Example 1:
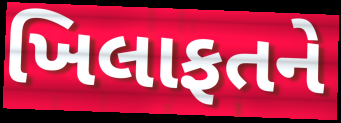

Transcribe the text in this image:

ખિલાફતને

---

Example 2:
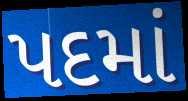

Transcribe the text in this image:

પદમાં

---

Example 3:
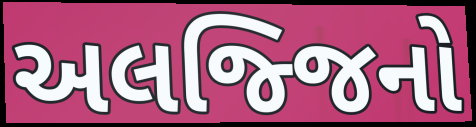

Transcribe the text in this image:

અલજ્જિનો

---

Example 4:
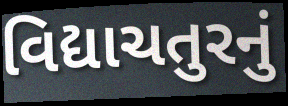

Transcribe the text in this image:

વિદ્યાચતુરનું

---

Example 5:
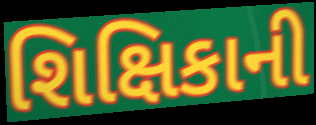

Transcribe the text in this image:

શિક્ષિકાની